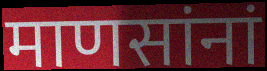
माणसांनां